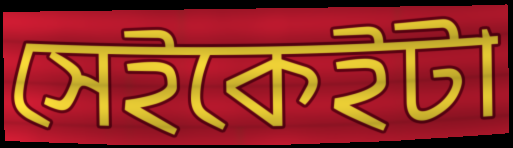
সেইকেইটা